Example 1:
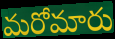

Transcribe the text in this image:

మరోమారు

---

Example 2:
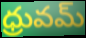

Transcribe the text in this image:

ధ్రువమ్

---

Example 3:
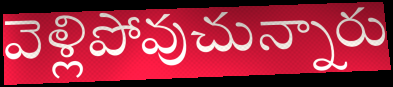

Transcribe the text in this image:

వెళ్లిపోవుచున్నారు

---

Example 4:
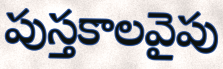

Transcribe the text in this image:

పుస్తకాలవైపు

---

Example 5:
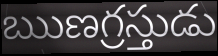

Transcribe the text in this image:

ఋణగ్రస్తుడు